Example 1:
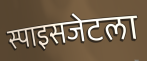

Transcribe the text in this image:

स्पाइसजेटला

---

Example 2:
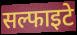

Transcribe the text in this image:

सल्फाइटे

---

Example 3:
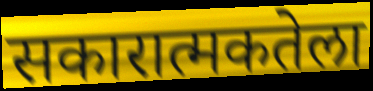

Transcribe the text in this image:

सकारात्मकतेला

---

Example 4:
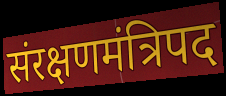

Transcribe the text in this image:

संरक्षणमंत्रिपद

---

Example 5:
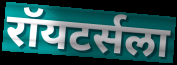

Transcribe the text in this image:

रॉयटर्सला